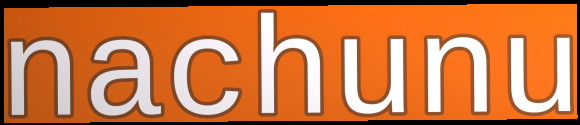
nachunu